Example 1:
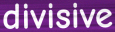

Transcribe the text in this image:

divisive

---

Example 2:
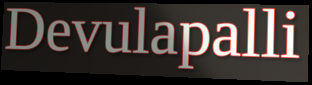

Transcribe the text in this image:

Devulapalli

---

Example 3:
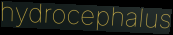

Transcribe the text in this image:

hydrocephalus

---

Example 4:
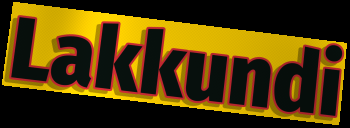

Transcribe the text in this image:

Lakkundi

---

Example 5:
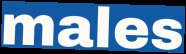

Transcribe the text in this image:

males